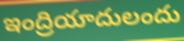
ఇంద్రియాదులందు